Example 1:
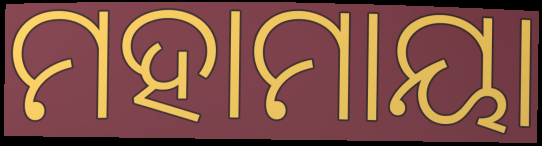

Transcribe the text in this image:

ମହାମାୟା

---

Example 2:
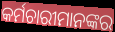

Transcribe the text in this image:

କର୍ମଚାରୀମାନଙ୍କର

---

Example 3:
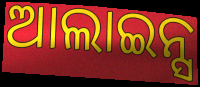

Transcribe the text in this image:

ଆଲାଇନ୍ସ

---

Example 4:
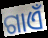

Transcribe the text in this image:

ଗାଏଁ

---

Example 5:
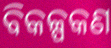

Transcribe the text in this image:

ବିକଳ୍ପକଣ